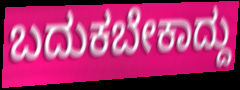
ಬದುಕಬೇಕಾದ್ದು